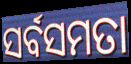
ସର୍ବସମତା